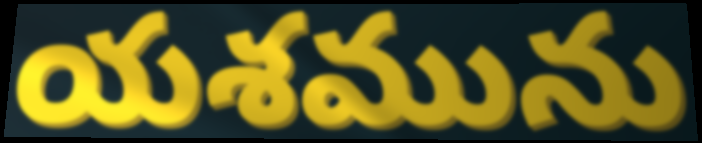
యశమును